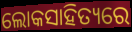
ଲୋକସାହିତ୍ୟରେ